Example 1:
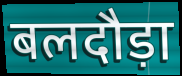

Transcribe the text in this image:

बलदौड़ा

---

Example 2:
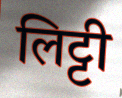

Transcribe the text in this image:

लिट्टी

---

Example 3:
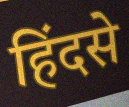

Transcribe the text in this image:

हिंदसे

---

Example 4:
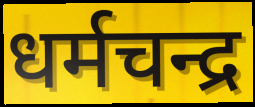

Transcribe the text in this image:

धर्मचन्द्र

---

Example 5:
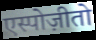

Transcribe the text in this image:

एस्पोज़ीतो